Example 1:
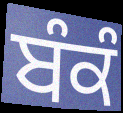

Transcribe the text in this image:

ਬੰਕੰ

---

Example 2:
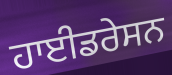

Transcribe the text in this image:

ਹਾਈਡਰੇਸਨ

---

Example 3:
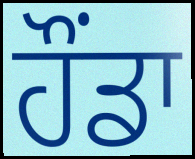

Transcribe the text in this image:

ਹੌਂਡਾ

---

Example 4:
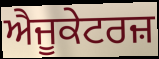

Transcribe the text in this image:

ਐਜੂਕੇਟਰਜ਼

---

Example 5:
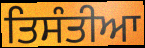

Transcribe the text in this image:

ਤਿਸੰਤੀਆ